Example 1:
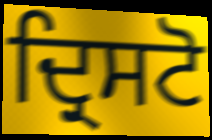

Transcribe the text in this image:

ਦ੍ਰਿਸਟੋ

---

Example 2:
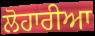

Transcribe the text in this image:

ਲੋਹਾਰੀਆ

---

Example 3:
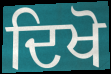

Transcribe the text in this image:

ਦਿਖੋ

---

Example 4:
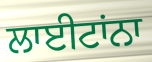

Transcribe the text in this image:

ਲਾਈਟਾਂਨਾ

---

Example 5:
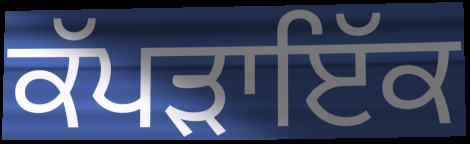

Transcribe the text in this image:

ਕੱਪੜਾਇੱਕ